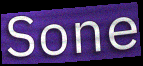
Sone